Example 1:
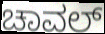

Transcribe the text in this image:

ಚಾವಲ್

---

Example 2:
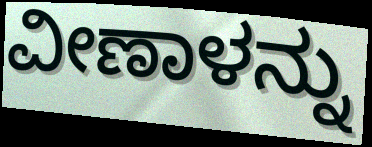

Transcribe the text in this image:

ವೀಣಾಳನ್ನು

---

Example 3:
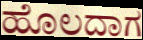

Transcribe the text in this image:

ಹೊಲದಾಗ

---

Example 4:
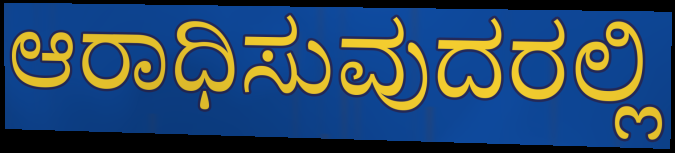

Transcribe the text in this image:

ಆರಾಧಿಸುವುದರಲ್ಲಿ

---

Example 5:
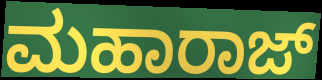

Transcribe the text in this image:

ಮಹಾರಾಜ್